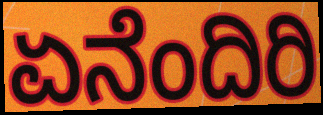
ಏನೆಂದಿರಿ